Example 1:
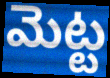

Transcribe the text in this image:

మెట్ట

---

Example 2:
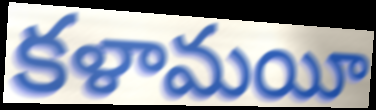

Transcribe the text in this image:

కళామయీ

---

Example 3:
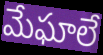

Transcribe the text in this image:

మేఘాలే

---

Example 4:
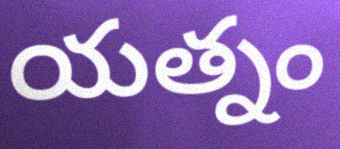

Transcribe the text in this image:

యత్నం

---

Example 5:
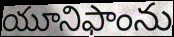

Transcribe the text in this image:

యూనిఫాంను